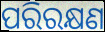
ପରିରକ୍ଷଣ